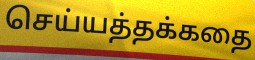
செய்யத்தக்கதை